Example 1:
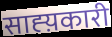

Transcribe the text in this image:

साह्य़कारी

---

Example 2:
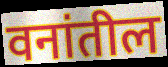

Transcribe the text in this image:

वनांतील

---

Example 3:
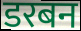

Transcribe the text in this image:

डरबन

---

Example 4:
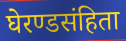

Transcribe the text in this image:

घेरण्डसंहिता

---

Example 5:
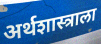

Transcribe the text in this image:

अर्थशास्त्राला